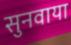
सुनवाया